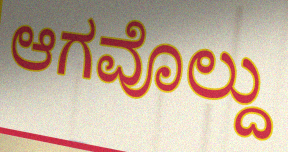
ಆಗವೊಲ್ದು